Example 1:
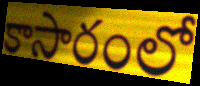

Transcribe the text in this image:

కాసారంలో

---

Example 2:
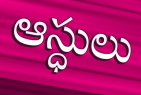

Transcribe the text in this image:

ఆస్ధులు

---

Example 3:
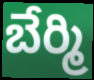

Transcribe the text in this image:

బేర్మి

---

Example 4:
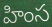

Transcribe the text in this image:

హింస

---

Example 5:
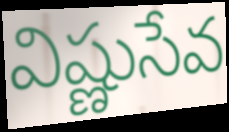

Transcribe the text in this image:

విష్ణుసేవ